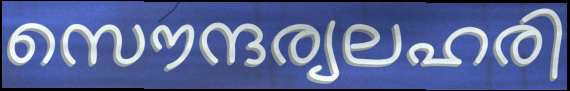
സൌന്ദര്യലഹരി